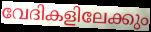
വേദികളിലേക്കും